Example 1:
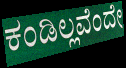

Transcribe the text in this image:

ಕಂಡಿಲ್ಲವೆಂದೇ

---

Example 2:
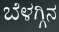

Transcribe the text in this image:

ಬೆಳಗ್ಗಿನ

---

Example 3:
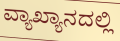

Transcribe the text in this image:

ವ್ಯಾಖ್ಯಾನದಲ್ಲಿ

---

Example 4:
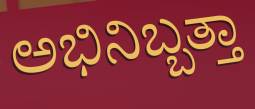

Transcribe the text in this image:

ಅಭಿನಿಬ್ಬತ್ತಾ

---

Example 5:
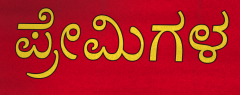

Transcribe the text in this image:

ಪ್ರೇಮಿಗಳ